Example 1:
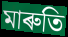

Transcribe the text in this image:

মাৰুতি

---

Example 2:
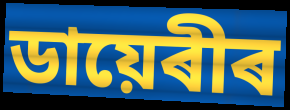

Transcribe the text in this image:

ডায়েৰীৰ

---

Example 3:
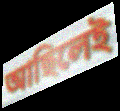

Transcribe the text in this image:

আছিলেই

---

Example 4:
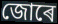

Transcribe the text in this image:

জোৰে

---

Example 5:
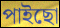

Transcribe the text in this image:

পাইছো